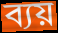
ব্যয়